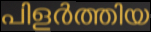
പിളർത്തിയ